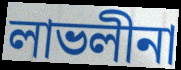
লাভলীনা